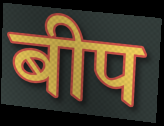
बीप